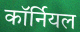
कॉर्नियल